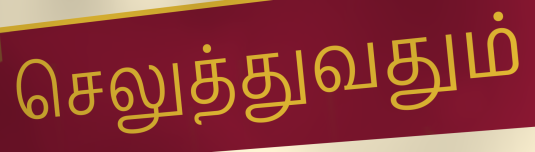
செலுத்துவதும்